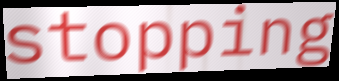
stopping